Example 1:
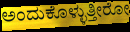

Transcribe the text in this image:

ಅಂದುಕೊಳ್ಳುತ್ತೀರೋ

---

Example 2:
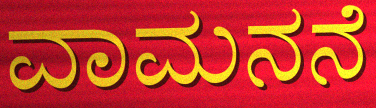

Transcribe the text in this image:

ವಾಮನನೆ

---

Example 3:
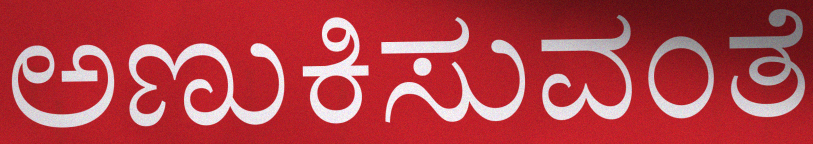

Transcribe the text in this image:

ಅಣುಕಿಸುವಂತೆ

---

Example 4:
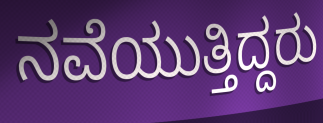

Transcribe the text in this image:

ನವೆಯುತ್ತಿದ್ದರು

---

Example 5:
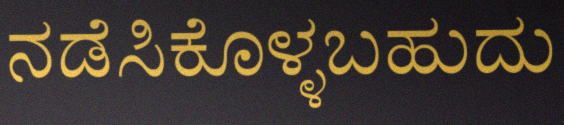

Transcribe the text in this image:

ನಡೆಸಿಕೊಳ್ಳಬಹುದು